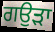
ਗਉੜਾ